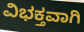
ವಿಭಕ್ತವಾಗಿ